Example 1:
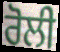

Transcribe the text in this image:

ਰੋਲੀ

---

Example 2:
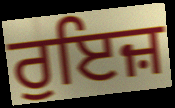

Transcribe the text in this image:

ਰੁਇਜ਼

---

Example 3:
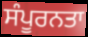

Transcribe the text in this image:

ਸੰਪੂਰਨਤਾ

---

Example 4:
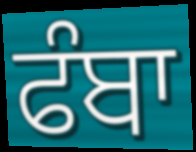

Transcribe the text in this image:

ਫੰਬਾ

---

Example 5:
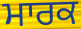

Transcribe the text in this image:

ਮਾਰਕ